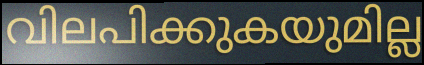
വിലപിക്കുകയുമില്ല